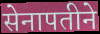
सेनापतीने